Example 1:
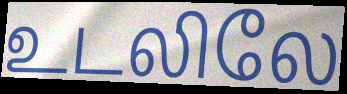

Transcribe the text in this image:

உடலிலே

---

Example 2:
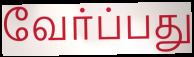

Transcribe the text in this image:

வேர்ப்பது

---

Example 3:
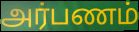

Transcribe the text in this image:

அர்பணம்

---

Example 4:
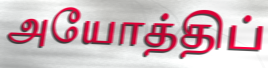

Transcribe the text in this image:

அயோத்திப்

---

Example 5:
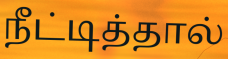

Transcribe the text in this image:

நீட்டித்தால்